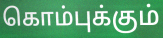
கொம்புக்கும்